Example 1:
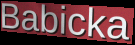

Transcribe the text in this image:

Babicka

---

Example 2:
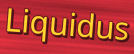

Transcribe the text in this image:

Liquidus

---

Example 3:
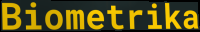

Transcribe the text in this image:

Biometrika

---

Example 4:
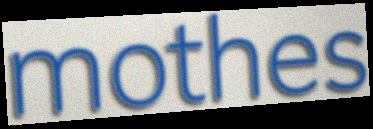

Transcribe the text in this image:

mothes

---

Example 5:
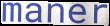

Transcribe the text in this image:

maner